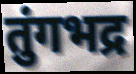
तुंगभद्र